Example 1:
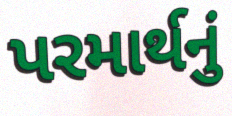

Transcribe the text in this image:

પરમાર્થનું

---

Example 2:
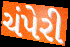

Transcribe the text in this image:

ચંપેરી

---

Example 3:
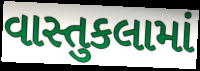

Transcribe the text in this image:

વાસ્તુકલામાં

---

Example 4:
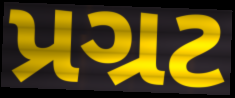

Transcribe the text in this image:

પ્રગ્રટ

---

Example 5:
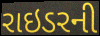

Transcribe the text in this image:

રાઇડરની